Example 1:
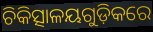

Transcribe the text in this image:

ଚିକିତ୍ସାଳୟଗୁଡ଼ିକରେ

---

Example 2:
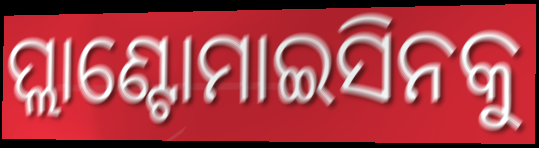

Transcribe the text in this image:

ପ୍ଲାଣ୍ଟୋମାଇସିନକୁ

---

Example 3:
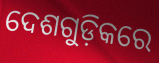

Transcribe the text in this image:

ଦେଶଗୁଡ଼ିକରେ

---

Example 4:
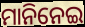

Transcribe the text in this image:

ମାନିନେଇ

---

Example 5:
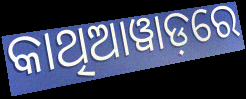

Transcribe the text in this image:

କାଥିଆୱାଡ଼ରେ